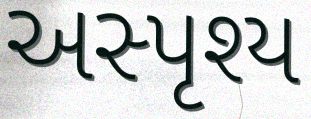
અસ્પૃશ્ય